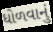
ધોળવાનું